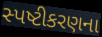
સ્પષ્ટીકરણના